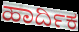
ಹಾರ್ದಿಕ